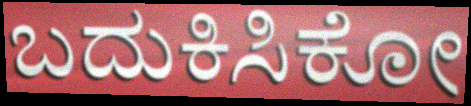
ಬದುಕಿಸಿಕೋ